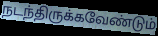
நடந்திருக்கவேண்டும்